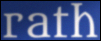
rath